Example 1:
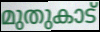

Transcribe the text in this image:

മുതുകാട്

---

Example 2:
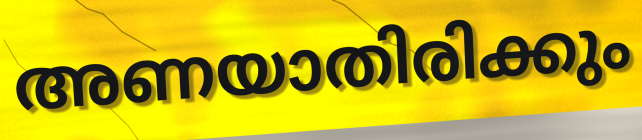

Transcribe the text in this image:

അണയാതിരിക്കും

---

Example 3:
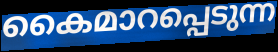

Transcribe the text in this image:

കൈമാറപ്പെടുന്ന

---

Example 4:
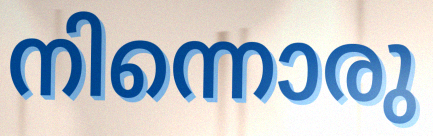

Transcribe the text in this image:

നിന്നൊരു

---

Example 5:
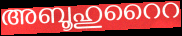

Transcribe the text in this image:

അബൂഹുറൈറ